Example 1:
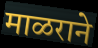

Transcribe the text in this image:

माळराने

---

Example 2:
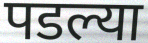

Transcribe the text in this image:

पडल्या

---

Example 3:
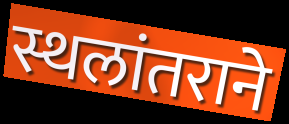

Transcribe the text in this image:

स्थलांतराने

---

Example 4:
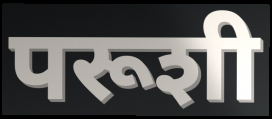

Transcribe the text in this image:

परूशी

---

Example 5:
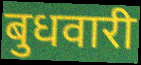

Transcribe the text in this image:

बुधवारी